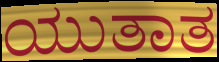
ಯುತಾತ